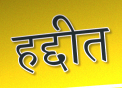
हद्दीत